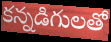
కన్నడిగులతో